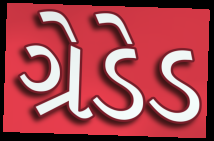
ગ્રેડેડ